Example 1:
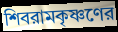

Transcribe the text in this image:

শিবরামকৃষ্ণণের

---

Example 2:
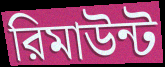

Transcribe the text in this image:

রিমাউন্ট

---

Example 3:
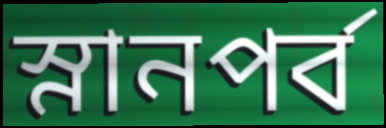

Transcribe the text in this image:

স্নানপর্ব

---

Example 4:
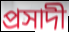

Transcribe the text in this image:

প্রসাদী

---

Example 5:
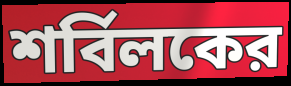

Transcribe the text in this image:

শর্বিলকের